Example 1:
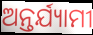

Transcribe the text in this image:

ଅନ୍ତର୍ଯ୍ୟାମୀ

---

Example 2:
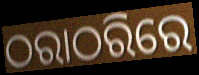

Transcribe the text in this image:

ଠରାଠରିରେ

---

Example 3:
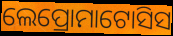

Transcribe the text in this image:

ଲେପ୍ରୋମାଟୋସିସ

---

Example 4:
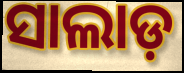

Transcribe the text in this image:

ସାଲାଡ଼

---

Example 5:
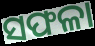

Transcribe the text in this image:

ସଫଳା